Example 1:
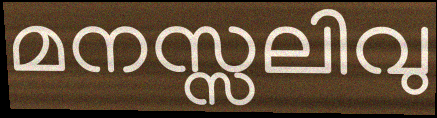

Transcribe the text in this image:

മനസ്സലിവു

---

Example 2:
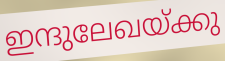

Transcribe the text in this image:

ഇന്ദുലേഖയ്ക്കു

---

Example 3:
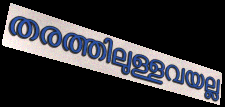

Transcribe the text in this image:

തരത്തിലുള്ളവയല്ല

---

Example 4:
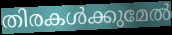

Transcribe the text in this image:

തിരകൾക്കുമേൽ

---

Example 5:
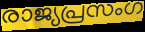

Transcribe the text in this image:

രാജ്യപ്രസംഗ